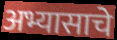
अभ्यासाचे